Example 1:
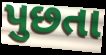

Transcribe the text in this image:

પુછતા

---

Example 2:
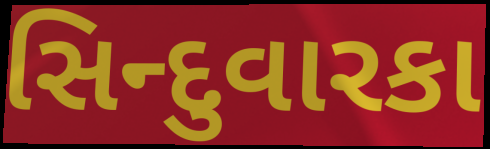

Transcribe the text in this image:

સિન્દુવારકા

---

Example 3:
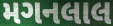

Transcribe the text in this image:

મગનલાલ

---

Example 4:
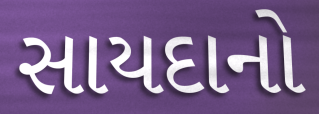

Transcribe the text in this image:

સાયદાનો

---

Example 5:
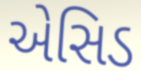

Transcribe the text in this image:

એસિડ